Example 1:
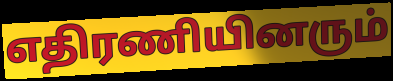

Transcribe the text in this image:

எதிரணியினரும்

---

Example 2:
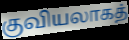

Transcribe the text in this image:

குவியலாகத்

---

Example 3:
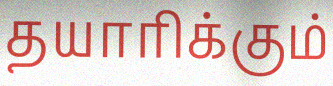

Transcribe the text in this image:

தயாரிக்கும்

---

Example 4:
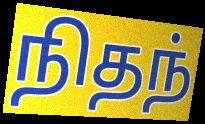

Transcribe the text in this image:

நிதந்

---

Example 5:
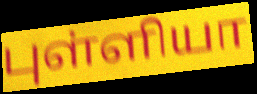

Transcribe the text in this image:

புள்ளியா